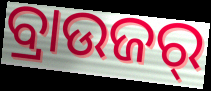
ବ୍ରାଉଜର୍